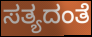
ಸತ್ಯದಂತೆ